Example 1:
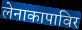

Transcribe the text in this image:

लेनाकापाविर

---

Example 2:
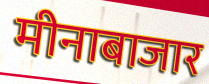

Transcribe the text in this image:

मीनाबाजार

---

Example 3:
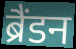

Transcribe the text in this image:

ब्रैंडन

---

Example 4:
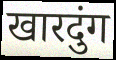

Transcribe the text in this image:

खारदुंग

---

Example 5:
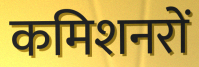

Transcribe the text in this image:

कमिशनरों